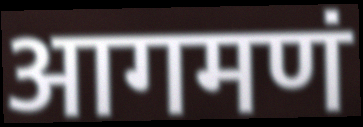
आगमणं